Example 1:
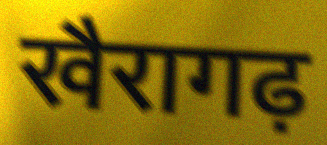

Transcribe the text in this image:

खैरागढ़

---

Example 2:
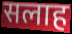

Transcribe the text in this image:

सलाह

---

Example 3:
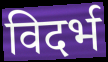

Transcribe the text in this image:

विदर्भ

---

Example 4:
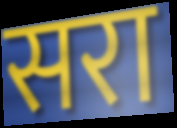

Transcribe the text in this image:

सरा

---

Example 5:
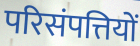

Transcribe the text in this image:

परिसंपत्तियों